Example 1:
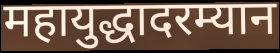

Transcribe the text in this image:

महायुद्धादरम्यान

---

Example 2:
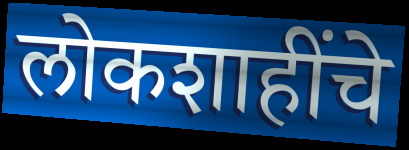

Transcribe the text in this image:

लोकशाहींचे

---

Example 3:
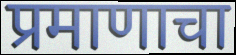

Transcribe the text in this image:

प्रमाणाचा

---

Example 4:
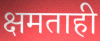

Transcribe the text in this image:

क्षमताही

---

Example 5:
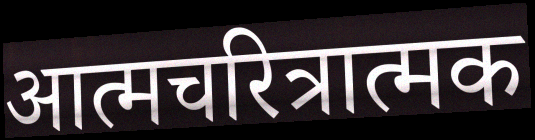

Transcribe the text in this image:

आत्मचरित्रात्मक